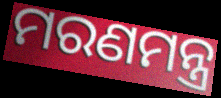
ମରଣମନ୍ତ୍ର